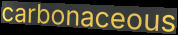
carbonaceous